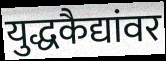
युद्धकैद्यांवर